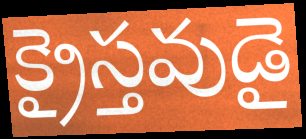
క్రైస్తవుడై